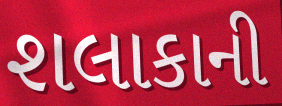
શલાકાની